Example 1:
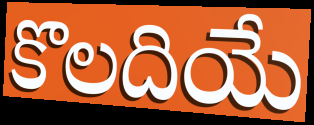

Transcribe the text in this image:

కొలదియే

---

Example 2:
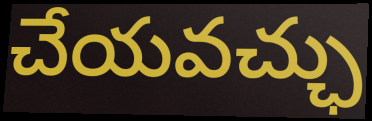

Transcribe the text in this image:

చేయవచ్ఛు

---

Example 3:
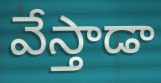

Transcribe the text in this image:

వేస్తాడా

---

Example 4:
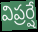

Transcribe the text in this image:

విప్రర్షే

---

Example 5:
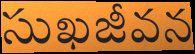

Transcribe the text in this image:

సుఖజీవన